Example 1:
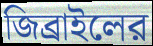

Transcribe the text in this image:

জিব্রাইলের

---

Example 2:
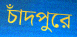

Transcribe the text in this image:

চাঁদপুরে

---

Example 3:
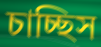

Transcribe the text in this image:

চাচ্ছিস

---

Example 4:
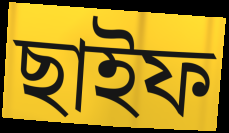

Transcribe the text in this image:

ছাইফ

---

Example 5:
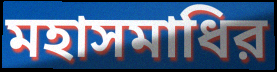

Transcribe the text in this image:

মহাসমাধির